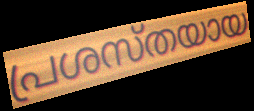
പ്രശസ്തയായ